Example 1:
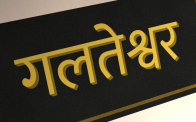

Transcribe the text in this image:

गलतेश्वर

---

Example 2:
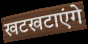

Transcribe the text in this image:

खटखटाएंगे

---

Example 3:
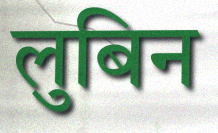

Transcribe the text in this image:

लुबिन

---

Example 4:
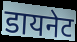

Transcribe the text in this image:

डायनेट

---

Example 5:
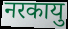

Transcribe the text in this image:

नरकायु